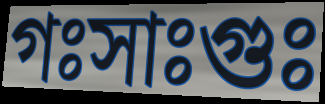
গঃসাঃগুঃ